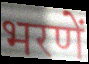
भरणें